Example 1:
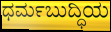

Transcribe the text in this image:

ಧರ್ಮಬುದ್ಧಿಯ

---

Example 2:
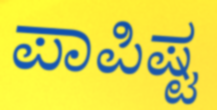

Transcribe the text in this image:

ಪಾಪಿಷ್ಟ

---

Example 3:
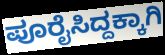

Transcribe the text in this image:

ಪೂರೈಸಿದ್ದಕ್ಕಾಗಿ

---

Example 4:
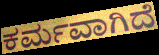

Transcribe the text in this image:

ಕರ್ಮವಾಗಿದೆ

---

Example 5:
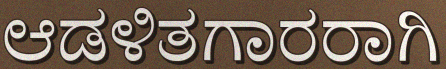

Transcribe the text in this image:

ಆಡಳಿತಗಾರರಾಗಿ